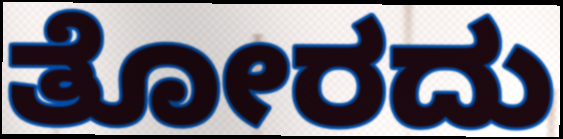
ತೋರದು